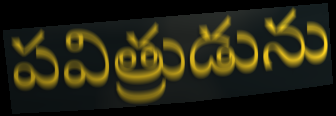
పవిత్రుడును